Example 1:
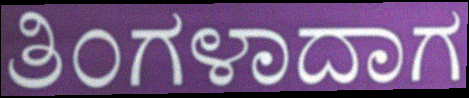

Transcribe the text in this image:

ತಿಂಗಳಾದಾಗ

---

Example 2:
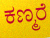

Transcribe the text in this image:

ಕಣ್ಮರೆ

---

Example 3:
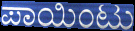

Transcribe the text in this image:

ಪಾಯಿಂಟು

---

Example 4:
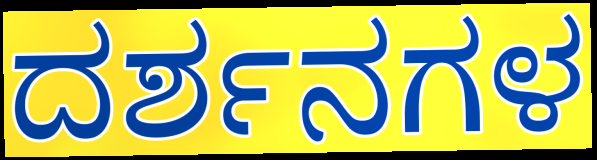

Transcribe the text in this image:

ದರ್ಶನಗಳ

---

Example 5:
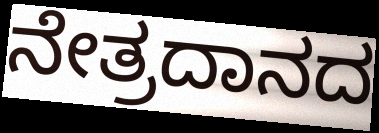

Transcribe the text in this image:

ನೇತ್ರದಾನದ